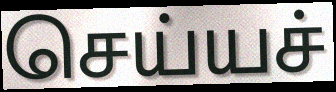
செய்யச்